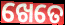
ଖେତେ